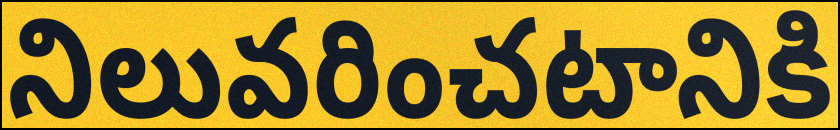
నిలువరించటానికి